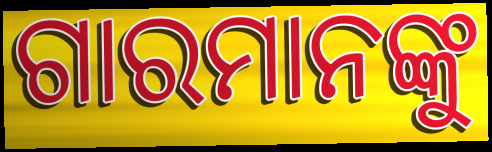
ଗାରମାନଙ୍କୁ